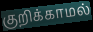
குறிக்காமல்